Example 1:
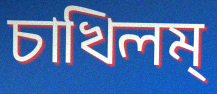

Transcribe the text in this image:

চাখিলম্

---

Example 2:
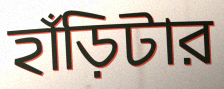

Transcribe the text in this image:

হাঁড়িটার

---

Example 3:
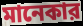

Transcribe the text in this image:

মানেকার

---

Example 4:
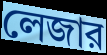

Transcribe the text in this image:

লেজার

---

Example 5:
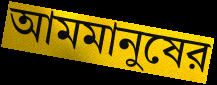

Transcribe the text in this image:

আমমানুষের